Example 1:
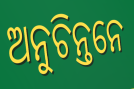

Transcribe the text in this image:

ଅନୁଚିନ୍ତନେ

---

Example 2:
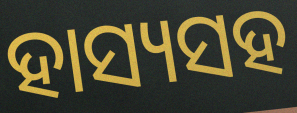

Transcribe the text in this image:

ହାସ୍ୟସହ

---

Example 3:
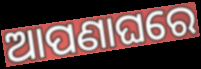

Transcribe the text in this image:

ଆପଣାଘରେ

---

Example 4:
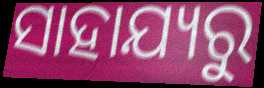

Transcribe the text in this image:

ସାହାଯ୍ୟରୁ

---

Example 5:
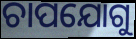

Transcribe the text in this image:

ଚାପଯୋଗୁ